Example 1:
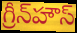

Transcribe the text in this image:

గ్రీన్‌హౌస్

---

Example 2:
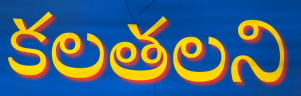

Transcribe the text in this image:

కలతలని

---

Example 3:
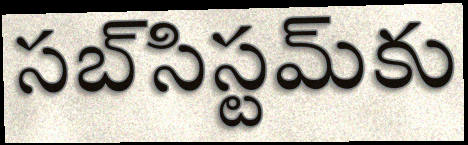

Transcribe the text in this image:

సబ్‌సిస్టమ్‌కు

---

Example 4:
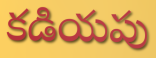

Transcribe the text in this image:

కడియపు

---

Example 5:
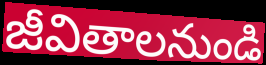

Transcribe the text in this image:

జీవితాలనుండి